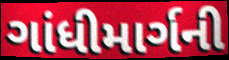
ગાંધીમાર્ગની